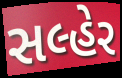
સલ્હેર